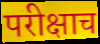
परीक्षाच